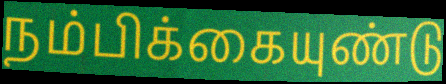
நம்பிக்கையுண்டு